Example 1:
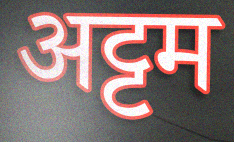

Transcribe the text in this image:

अट्टम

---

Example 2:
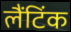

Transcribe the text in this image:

लैंटिंक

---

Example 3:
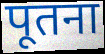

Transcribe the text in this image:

पूतना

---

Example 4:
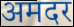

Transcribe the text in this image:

अमदर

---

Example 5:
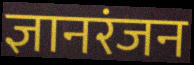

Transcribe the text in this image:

ज्ञानरंजन